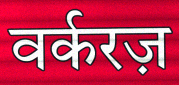
वर्करज़